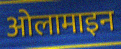
ओलामाइन